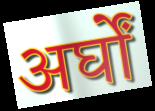
अर्घों